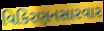
વિકિરણનસારવાર